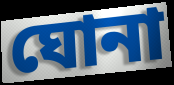
ঘোনা